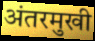
अंतरमुखी